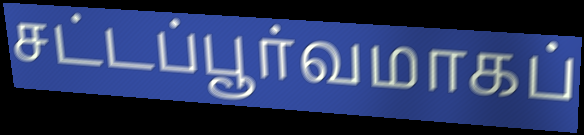
சட்டப்பூர்வமாகப்